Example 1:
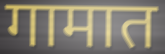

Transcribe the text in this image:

गामात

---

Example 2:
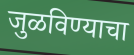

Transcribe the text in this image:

जुळविण्याचा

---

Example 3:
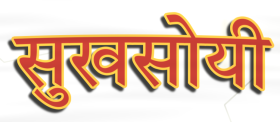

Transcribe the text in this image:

सुखसोयी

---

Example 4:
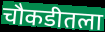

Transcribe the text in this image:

चौकडीतला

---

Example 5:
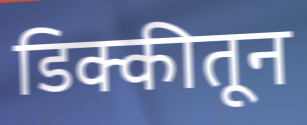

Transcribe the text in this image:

डिक्कीतून